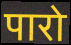
पारो